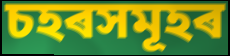
চহৰসমূহৰ